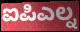
ಐಪಿಎಲ್ನ